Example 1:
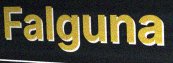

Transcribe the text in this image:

Falguna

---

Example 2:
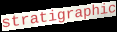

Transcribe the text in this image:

stratigraphic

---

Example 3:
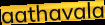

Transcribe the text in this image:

aathavala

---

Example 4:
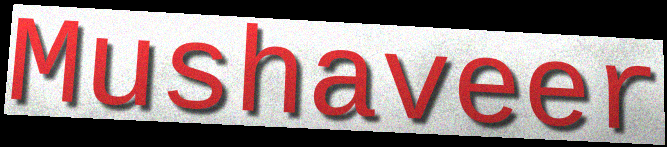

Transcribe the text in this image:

Mushaveer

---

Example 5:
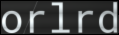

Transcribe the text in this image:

orlrd